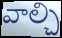
వాల్చి